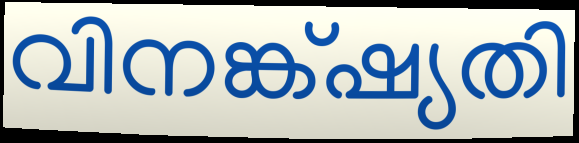
വിനങ്ക്ഷ്യതി